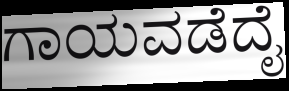
ಗಾಯವಡೆದೈ